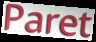
Paret